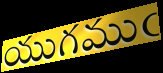
యుగముఁ